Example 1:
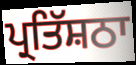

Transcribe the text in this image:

ਪ੍ਰਤਿੱਸ਼ਠਾ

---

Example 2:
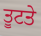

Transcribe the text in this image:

ਤੂਟਤੇ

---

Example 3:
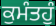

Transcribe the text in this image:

ਕੁਮੰਤਹੁੰ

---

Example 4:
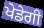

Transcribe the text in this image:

ਖੇਡੇਗੀ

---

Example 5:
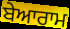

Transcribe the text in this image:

ਬੇਆਰਾਮ